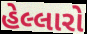
હેલ્લારો